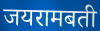
जयरामबती